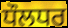
ਧੌਲਧਰ